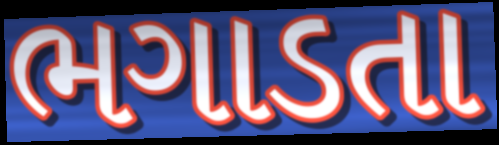
ભગાડતા